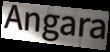
Angara